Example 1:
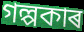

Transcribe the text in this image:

গল্পকাৰ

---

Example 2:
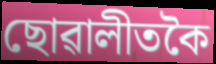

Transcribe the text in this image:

ছোৱালীতকৈ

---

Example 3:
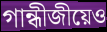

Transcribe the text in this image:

গান্ধীজীয়েও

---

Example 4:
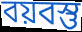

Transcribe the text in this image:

বয়বস্তু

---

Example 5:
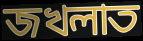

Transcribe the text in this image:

জখলাত